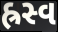
હ્રસ્વ